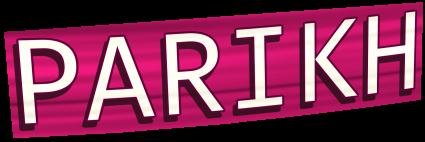
PARIKH